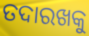
ତଦାରଖକୁ